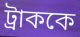
ট্রাককে